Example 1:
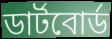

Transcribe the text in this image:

ডার্টবোর্ড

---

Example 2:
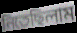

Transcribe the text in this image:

নিতেছিলাম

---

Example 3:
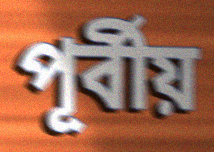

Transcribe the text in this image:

পূর্বীয়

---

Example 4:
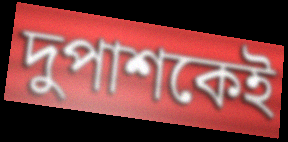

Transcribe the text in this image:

দুপাশকেই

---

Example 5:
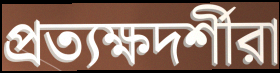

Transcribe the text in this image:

প্রত্যক্ষদর্শীরা